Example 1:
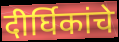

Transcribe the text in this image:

दीर्घिकांचे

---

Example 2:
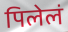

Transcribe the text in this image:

पिलेलं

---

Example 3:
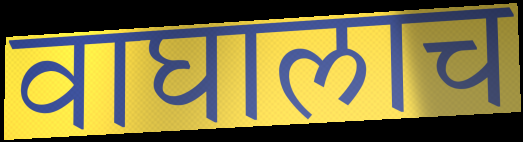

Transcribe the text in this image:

वाघालाच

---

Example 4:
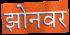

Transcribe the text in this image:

झोनवर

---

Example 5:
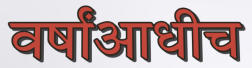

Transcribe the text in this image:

वर्षांआधीच